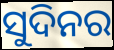
ସୁଦିନର